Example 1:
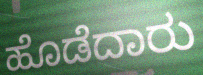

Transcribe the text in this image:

ಹೊಡೆದಾರು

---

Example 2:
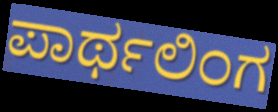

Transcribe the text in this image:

ಪಾರ್ಥಲಿಂಗ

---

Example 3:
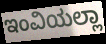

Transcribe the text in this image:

ಇಂವಿಯಲ್ಲಾ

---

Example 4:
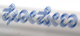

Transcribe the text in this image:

ಘೋಷೇಣ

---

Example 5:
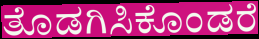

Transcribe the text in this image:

ತೊಡಗಿಸಿಕೊಂಡರೆ